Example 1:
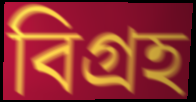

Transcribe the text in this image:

বিগ্রহ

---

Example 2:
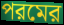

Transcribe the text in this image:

পরমের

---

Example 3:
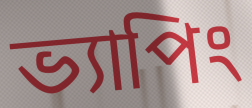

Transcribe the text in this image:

ভ্যাপিং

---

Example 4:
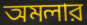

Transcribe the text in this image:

অমলার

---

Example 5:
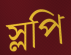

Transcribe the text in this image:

স্লপি